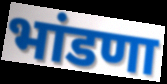
भांडणा